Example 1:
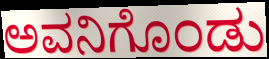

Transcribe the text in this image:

ಅವನಿಗೊಂಡು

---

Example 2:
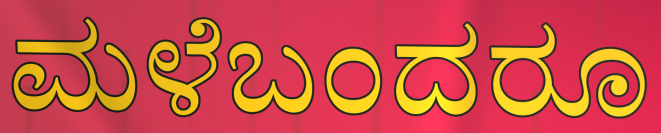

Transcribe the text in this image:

ಮಳೆಬಂದರೂ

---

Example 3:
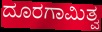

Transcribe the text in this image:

ದೂರಗಾಮಿತ್ವ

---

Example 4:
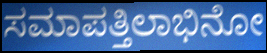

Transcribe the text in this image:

ಸಮಾಪತ್ತಿಲಾಭಿನೋ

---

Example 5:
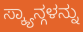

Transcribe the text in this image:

ಸ್ಕ್ಯಾನ್ಗಳನ್ನು